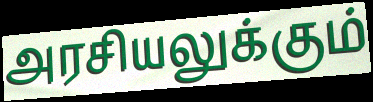
அரசியலுக்கும்